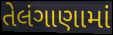
તેલંગાણામાં